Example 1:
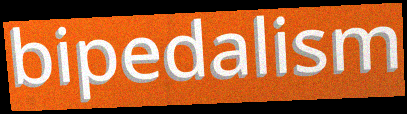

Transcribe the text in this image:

bipedalism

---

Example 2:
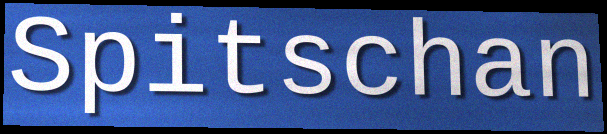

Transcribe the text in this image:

Spitschan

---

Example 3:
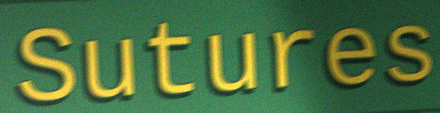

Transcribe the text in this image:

Sutures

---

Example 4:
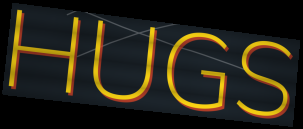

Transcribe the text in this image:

HUGS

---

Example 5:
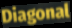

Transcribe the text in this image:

Diagonal